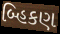
બ્હિકણ